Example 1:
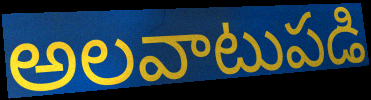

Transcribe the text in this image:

అలవాటుపడి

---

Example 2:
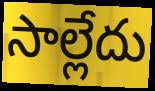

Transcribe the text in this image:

సాల్లేదు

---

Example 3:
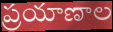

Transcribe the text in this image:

ప్రయాణాల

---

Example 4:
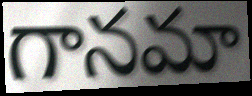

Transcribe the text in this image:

గానమా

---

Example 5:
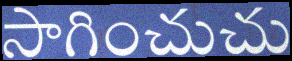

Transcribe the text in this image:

సాగించుచు